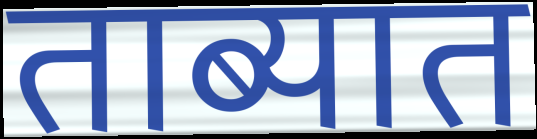
ताब्यात